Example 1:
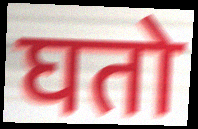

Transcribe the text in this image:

घतो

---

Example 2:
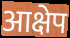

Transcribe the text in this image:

आक्षेप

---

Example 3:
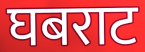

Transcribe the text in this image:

घबराट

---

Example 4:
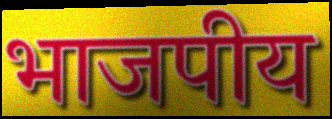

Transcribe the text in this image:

भाजपीय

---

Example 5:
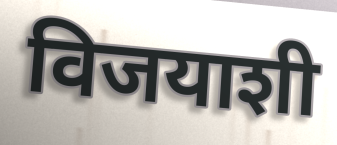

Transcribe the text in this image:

विजयाशी